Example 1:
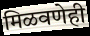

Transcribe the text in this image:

मिळवणेही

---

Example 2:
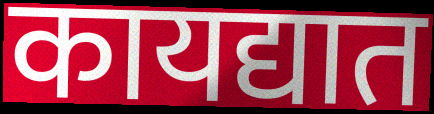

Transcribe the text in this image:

कायद्यात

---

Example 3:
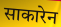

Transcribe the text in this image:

साकारेन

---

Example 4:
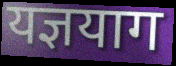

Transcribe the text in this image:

यज्ञयाग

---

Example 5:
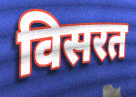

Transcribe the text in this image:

विसरत